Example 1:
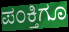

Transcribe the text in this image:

ಪಂಕ್ತಿಗೂ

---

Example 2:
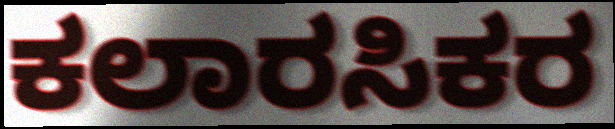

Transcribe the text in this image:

ಕಲಾರಸಿಕರ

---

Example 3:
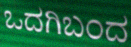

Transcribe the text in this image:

ಒದಗಿಬಂದ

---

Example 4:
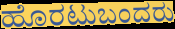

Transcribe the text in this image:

ಹೊರಟುಬಂದರು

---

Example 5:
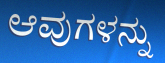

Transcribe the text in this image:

ಆವುಗಳನ್ನು